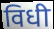
विधी